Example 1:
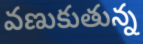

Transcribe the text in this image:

వణుకుతున్న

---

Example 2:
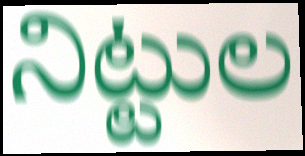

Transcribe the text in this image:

నిట్టుల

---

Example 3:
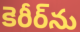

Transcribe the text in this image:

కెరీర్‌ను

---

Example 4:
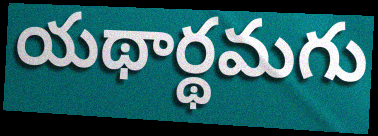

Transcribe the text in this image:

యథార్థమగు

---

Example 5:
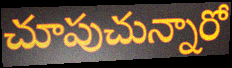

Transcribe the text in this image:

చూపుచున్నారో